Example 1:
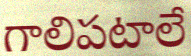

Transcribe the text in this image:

గాలిపటాలే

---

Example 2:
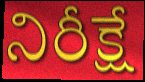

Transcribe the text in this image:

నిరీక్షే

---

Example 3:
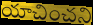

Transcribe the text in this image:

యాచించని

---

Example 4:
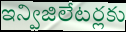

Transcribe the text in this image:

ఇన్విజిలేటర్లకు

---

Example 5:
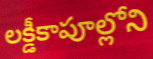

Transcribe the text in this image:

లక్డీకాపూల్లోని